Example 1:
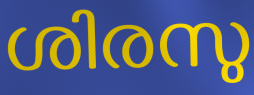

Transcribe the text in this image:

ശിരസു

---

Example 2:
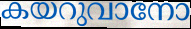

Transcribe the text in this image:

കയറുവാനോ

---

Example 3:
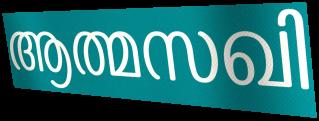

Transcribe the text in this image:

ആത്മസഖി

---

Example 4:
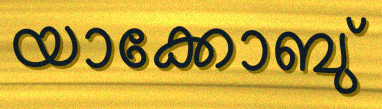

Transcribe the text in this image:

യാക്കോബു്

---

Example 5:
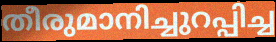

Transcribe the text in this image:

തീരുമാനിച്ചുറപ്പിച്ച